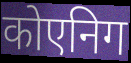
कोएनिग